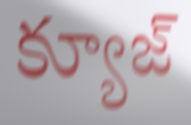
క్యూజ్